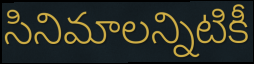
సినిమాలన్నిటికీ